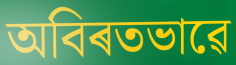
অবিৰতভাৱে